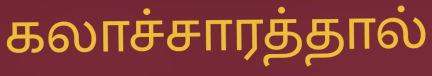
கலாச்சாரத்தால்